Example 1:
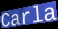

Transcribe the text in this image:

Carla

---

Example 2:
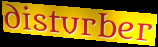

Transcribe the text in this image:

disturber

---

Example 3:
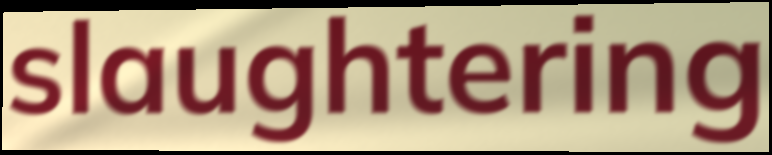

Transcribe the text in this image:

slaughtering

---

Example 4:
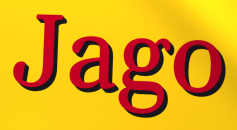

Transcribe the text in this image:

Jago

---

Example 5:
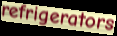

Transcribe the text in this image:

refrigerators